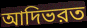
আদিভরত